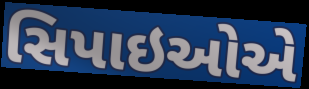
સિપાઇઓએ